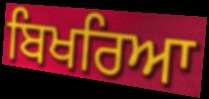
ਬਿਖਰਿਆ